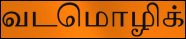
வடமொழிக்